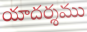
యాదర్శము